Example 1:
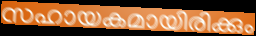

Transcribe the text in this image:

സഹായകമായിരിക്കും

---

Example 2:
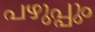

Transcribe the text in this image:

പഴുപ്പും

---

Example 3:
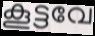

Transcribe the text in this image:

കൂട്ടവേ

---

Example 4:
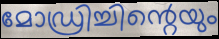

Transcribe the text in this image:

മോഡ്രിച്ചിന്റെയും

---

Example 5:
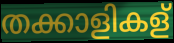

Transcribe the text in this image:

തക്കാളികള്